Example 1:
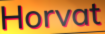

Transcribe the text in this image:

Horvat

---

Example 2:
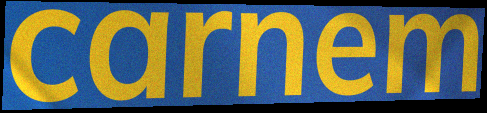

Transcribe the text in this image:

carnem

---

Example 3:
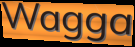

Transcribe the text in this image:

Wagga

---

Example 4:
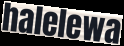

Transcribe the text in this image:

halelewa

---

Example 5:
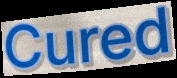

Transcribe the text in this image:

Cured